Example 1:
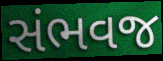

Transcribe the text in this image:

સંભવજ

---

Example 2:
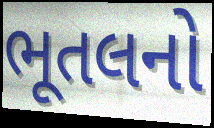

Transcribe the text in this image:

ભૂતલનો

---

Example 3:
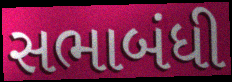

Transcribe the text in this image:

સભાબંધી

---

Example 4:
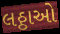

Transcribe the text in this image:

લઠ્ઠાઓ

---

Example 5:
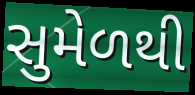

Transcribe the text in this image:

સુમેળથી